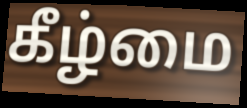
கீழ்மை